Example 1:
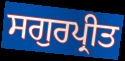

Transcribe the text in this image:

ਸਗੁਰਪ੍ਰੀਤ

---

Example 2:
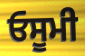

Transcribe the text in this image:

ਓਸੂਮੀ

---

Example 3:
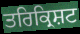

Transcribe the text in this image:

ਤਰਿਕ੍ਰਿਸ਼ਟ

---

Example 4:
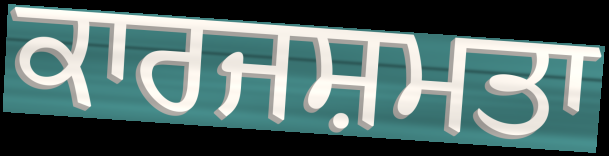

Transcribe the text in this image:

ਕਾਰਜਸ਼ਮਤਾ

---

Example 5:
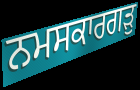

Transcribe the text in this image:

ਨਮਸਕਾਰਗੜੁ